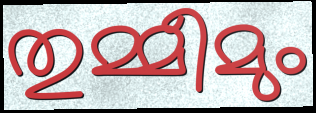
തുമ്മീമും